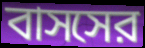
বাসসের